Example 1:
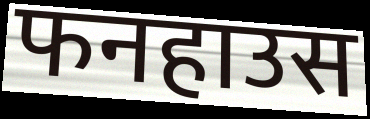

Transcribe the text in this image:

फनहाउस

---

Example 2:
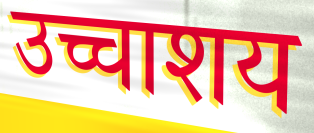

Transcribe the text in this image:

उच्चाशय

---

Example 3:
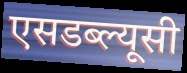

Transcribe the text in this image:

एसडब्ल्यूसी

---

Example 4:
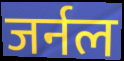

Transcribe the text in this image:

जर्नल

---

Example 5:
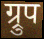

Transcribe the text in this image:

ग्र्रुप